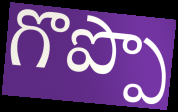
గొప్పొ